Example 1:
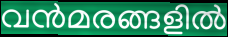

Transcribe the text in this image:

വൻമരങ്ങളിൽ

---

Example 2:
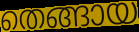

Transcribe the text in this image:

തെങ്ങായ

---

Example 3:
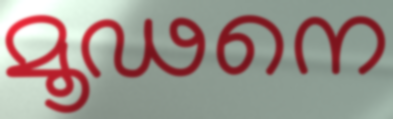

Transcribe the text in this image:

മൂഢനെ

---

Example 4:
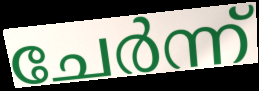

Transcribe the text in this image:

ചേർന്ന്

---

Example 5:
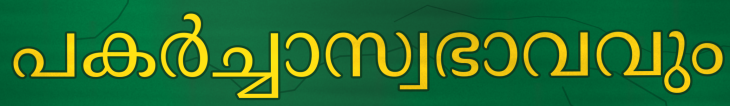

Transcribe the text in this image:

പകർച്ചാസ്വഭാവവും